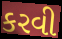
કરવી